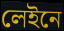
লেইনে